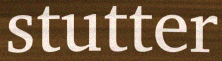
stutter